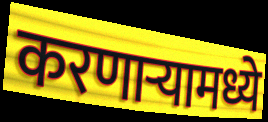
करणाऱ्यामध्ये